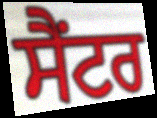
ਸੈਂਟਰ